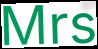
Mrs